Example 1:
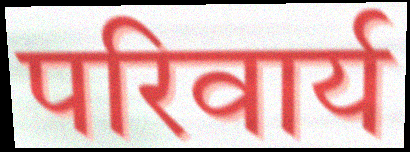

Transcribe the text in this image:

परिवार्य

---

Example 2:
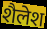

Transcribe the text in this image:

शैलेश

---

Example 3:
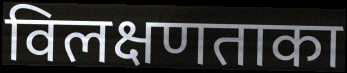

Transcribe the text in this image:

विलक्षणताका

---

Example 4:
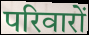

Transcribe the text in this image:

परिवारों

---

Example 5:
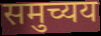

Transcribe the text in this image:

समुच्यय